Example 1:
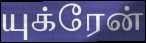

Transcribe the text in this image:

யுக்ரேன்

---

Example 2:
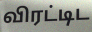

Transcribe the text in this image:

விரட்டிட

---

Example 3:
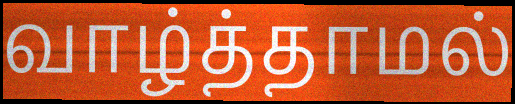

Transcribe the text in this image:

வாழ்த்தாமல்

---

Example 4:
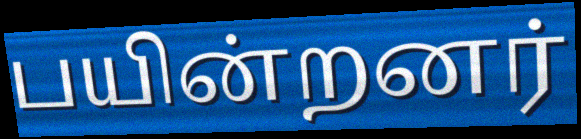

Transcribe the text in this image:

பயின்றனர்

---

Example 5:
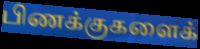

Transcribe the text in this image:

பிணக்குகளைக்